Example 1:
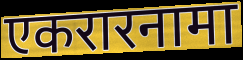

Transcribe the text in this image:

एकरारनामा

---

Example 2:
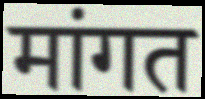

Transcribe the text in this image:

मांगत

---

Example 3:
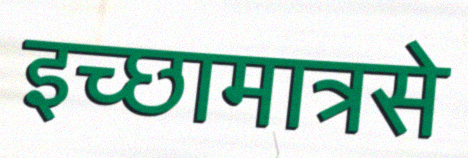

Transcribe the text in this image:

इच्छामात्रसे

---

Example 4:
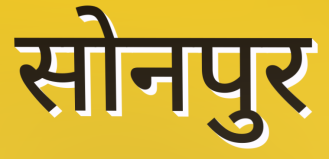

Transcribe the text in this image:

सोनपुर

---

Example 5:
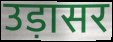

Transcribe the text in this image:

उड़ासर